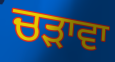
ਚੜਾਵਾ